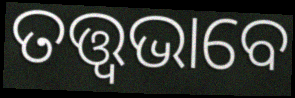
ତତ୍ତ୍ଵଭାବେ